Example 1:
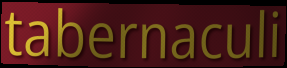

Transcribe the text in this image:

tabernaculi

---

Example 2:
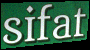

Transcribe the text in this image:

sifat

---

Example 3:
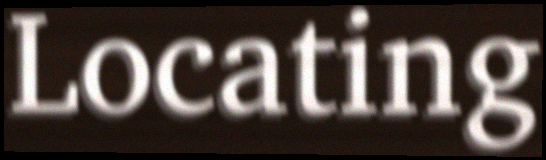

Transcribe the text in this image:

Locating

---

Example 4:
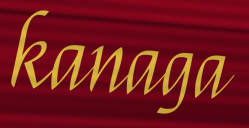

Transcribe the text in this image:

kanaga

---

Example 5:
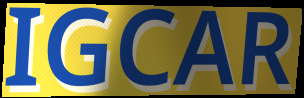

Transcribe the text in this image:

IGCAR